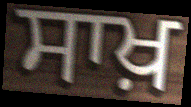
ਸਾਖ਼